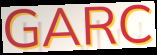
GARC